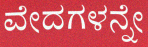
ವೇದಗಳನ್ನೇ